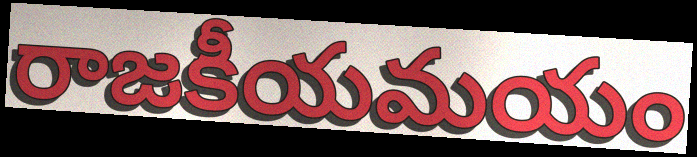
రాజకీయమయం